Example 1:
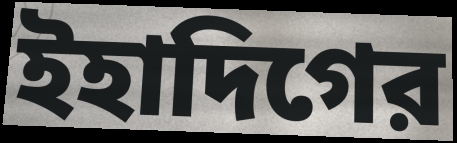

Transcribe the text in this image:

ইহাদিগের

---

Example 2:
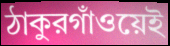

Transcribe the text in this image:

ঠাকুরগাঁওয়েই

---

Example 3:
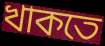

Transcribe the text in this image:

খাকতে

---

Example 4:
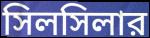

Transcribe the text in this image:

সিলসিলার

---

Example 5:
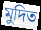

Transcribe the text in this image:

মুদিত